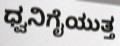
ಧ್ವನಿಗೈಯುತ್ತ